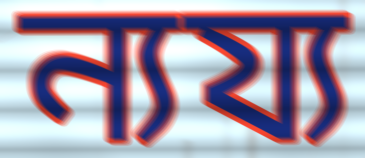
ন্যয্য